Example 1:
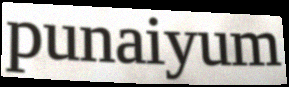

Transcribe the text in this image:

punaiyum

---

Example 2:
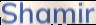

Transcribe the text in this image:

Shamir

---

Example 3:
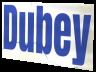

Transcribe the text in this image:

Dubey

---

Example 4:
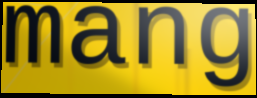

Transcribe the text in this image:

mang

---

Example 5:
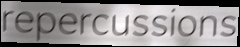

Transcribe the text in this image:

repercussions